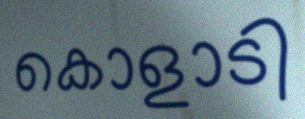
കൊളാടി